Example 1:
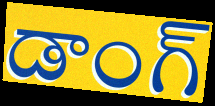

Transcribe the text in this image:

డాంగ్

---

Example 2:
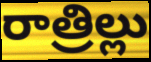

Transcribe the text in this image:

రాత్రిల్లు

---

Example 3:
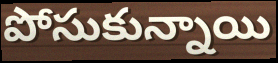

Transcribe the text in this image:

పోసుకున్నాయి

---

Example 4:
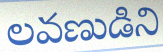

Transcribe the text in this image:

లవణుడిని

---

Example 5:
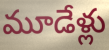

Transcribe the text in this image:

మూడేళ్లు